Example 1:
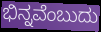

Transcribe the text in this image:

ಭಿನ್ನವೆಂಬುದು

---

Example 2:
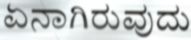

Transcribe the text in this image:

ಏನಾಗಿರುವುದು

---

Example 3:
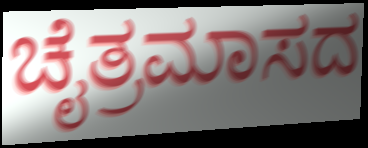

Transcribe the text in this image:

ಚೈತ್ರಮಾಸದ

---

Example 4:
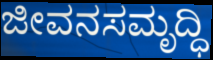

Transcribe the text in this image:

ಜೀವನಸಮೃದ್ಧಿ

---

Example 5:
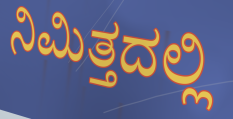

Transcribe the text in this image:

ನಿಮಿತ್ತದಲ್ಲಿ